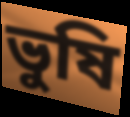
ভুষি